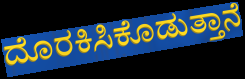
ದೊರಕಿಸಿಕೊಡುತ್ತಾನೆ